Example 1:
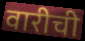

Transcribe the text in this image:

वारीची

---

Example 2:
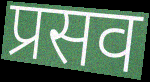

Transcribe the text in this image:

प्रसव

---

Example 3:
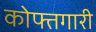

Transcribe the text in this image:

कोफ्तगारी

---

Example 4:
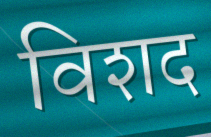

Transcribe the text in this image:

विशद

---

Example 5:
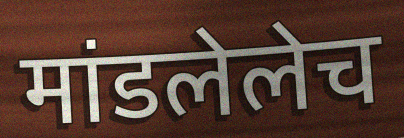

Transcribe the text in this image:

मांडलेलेच